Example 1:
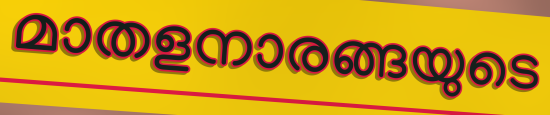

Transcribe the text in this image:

മാതളനാരങ്ങയുടെ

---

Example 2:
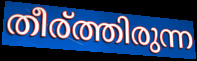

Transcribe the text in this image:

തീര്ത്തിരുന്ന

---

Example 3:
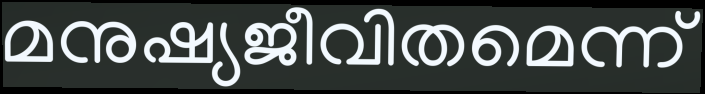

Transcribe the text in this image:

മനുഷ്യജീവിതമെന്ന്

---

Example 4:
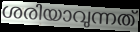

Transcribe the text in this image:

ശരിയാവുന്നത്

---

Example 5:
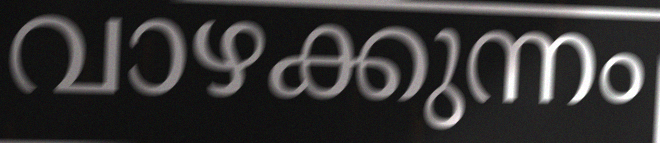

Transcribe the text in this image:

വാഴക്കുന്നം